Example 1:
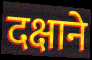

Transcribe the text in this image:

दक्षाने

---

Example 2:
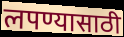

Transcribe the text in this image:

लपण्यासाठी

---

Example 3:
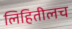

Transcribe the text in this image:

लिहितीलच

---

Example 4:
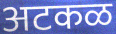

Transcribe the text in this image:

अटकळ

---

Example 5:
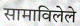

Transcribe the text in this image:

सामाविलेले